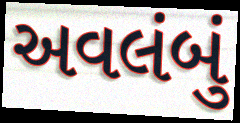
અવલંબું